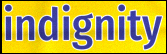
indignity